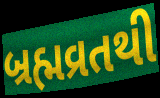
બ્રહ્મવ્રતથી